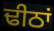
ਢੀਠਾਂ